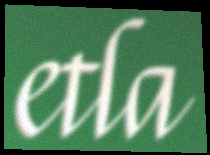
etla